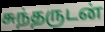
சுந்தருடன்